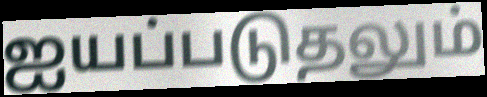
ஐயப்படுதலும்